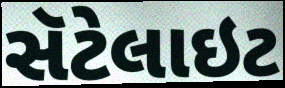
સૅટેલાઇટ